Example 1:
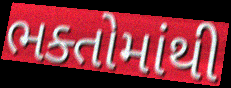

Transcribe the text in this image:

ભક્તોમાંથી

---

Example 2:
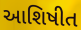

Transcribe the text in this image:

આશિષીત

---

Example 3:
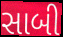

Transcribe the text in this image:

સાબી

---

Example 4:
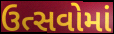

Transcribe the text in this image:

ઉત્સવોમાં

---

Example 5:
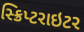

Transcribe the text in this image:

સ્ક્રિપ્ટરાઇટર